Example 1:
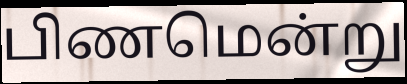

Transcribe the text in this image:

பிணமென்று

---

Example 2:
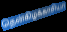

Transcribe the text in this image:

தென்கிழக்காசியா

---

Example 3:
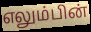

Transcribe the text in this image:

எலும்பின்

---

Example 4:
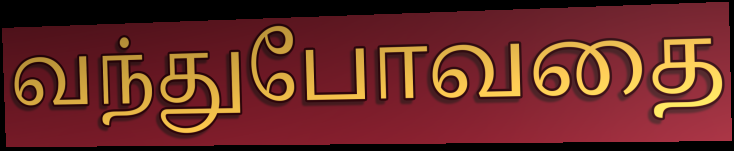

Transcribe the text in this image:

வந்துபோவதை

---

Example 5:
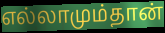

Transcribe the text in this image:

எல்லாமும்தான்